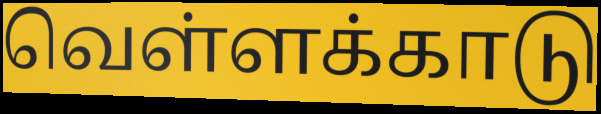
வெள்ளக்காடு